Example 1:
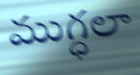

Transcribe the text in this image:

ముగ్ధలా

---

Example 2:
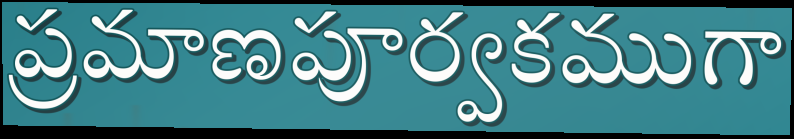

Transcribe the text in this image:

ప్రమాణపూర్వకముగా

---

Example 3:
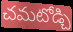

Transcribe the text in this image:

చమటోడ్చి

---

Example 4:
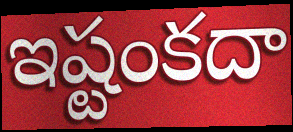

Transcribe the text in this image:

ఇష్టంకదా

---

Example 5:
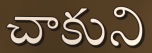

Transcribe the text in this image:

చాకుని